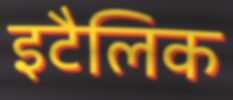
इटैलिक